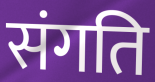
संगति